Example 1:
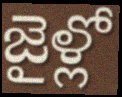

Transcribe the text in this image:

జైళ్లో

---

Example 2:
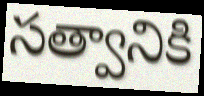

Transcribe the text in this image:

సత్వానికి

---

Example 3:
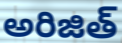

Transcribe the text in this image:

అరిజిత్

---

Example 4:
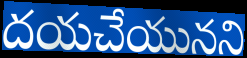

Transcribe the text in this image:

దయచేయునని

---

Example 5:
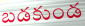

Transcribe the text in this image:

బడకుండ